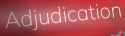
Adjudication